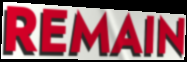
REMAIN